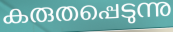
കരുതപ്പെടുന്നു